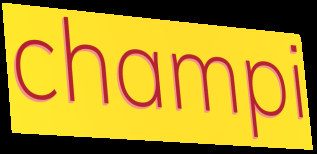
champi